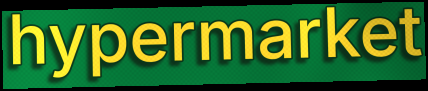
hypermarket